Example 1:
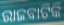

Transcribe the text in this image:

ରାଜବାଟିକି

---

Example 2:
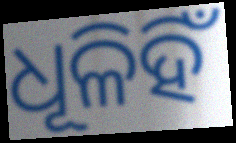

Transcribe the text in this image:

ଧୂଳିହିଁ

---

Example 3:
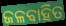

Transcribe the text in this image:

ଜଳବାହିତ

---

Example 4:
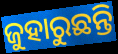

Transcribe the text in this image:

ଜୁହାରୁଛନ୍ତି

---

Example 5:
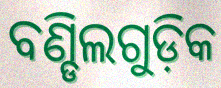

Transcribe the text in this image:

ବଣ୍ଡିଲଗୁଡ଼ିକ